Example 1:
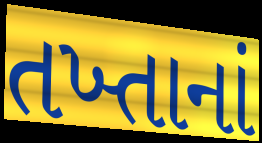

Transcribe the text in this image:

તખ્તાનાં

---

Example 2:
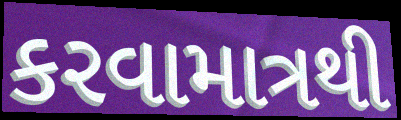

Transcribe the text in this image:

કરવામાત્રથી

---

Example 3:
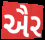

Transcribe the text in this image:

ઐર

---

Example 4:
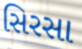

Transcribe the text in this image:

સિરસા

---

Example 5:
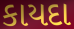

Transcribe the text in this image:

કાયદા